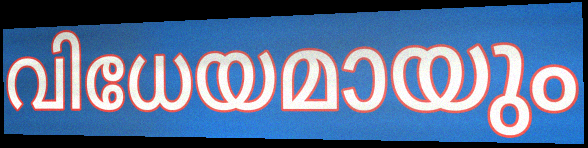
വിധേയമായും